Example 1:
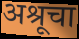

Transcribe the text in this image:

अश्रूचा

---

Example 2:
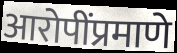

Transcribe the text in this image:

आरोपींप्रमाणे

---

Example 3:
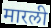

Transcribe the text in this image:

मारली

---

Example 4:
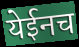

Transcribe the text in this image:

येईनच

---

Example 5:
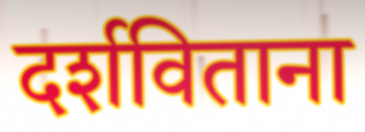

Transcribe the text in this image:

दर्शविताना